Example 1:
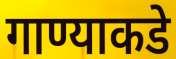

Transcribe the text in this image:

गाण्याकडे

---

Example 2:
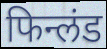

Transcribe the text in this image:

फिन्लंड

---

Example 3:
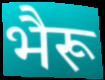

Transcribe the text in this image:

भैरू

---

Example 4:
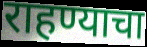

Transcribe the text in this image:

राहण्याचा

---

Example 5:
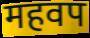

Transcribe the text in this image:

महवप